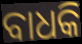
ବାଧକି